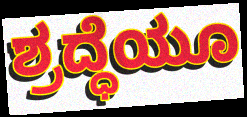
ಶ್ರದ್ಧೆಯೂ